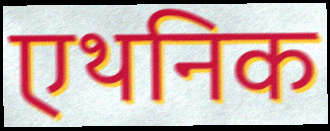
एथनिक